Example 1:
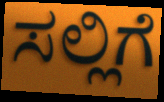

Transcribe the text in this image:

ಸಲ್ಲಿಗೆ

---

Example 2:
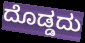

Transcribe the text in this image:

ದೊಡ್ಡದು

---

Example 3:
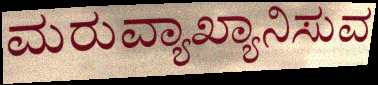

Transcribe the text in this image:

ಮರುವ್ಯಾಖ್ಯಾನಿಸುವ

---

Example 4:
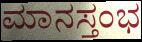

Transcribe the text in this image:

ಮಾನಸ್ತಂಭ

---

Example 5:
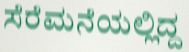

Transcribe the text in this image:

ಸೆರೆಮನೆಯಲ್ಲಿದ್ದ